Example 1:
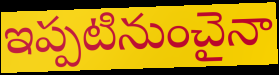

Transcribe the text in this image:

ఇప్పటినుంచైనా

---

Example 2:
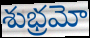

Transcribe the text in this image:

శుభ్రమో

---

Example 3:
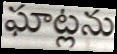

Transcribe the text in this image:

ఘాట్లను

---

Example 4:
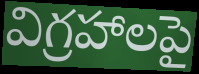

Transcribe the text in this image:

విగ్రహాలపై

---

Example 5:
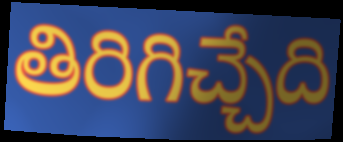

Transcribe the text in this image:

తిరిగిచ్చేది